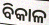
ବିକାଳ